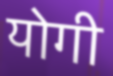
योगी